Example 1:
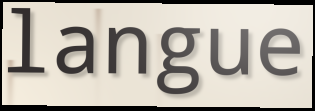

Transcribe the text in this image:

langue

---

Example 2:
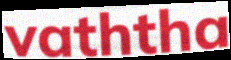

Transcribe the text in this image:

vaththa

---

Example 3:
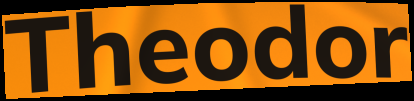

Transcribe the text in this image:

Theodor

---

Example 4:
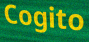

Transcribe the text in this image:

Cogito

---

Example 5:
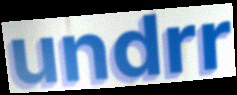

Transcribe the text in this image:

undrr